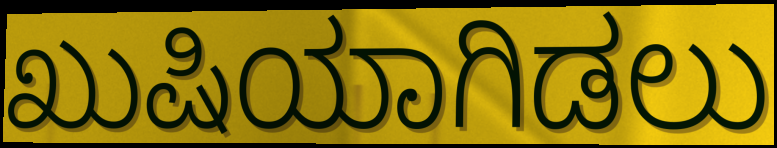
ಖುಷಿಯಾಗಿಡಲು